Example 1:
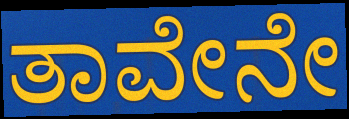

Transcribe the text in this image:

ತಾವೇನೇ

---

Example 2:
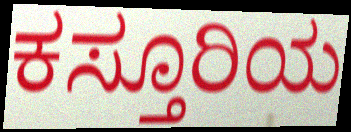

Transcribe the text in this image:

ಕಸ್ತೂರಿಯ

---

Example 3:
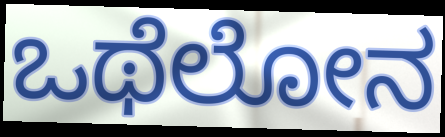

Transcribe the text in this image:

ಒಥೆಲೋನ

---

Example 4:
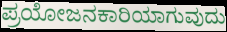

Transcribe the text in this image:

ಪ್ರಯೋಜನಕಾರಿಯಾಗುವುದು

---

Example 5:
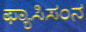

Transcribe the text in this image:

ಫ್ಯಾಸಿಸಂನ